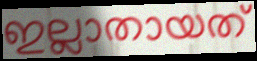
ഇല്ലാതായത്